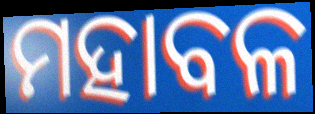
ମହାବଳ